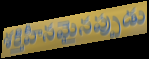
శక్తిహీనమైనప్పుడు